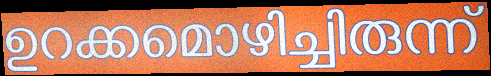
ഉറക്കമൊഴിച്ചിരുന്ന്